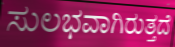
ಸುಲಭವಾಗಿರುತ್ತದೆ